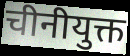
चीनीयुक्त